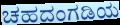
ಚಹದಂಗಡಿಯ